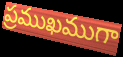
ప్రముఖముగా